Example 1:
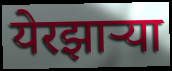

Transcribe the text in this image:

येरझार्‍या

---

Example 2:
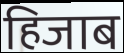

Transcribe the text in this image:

हिजाब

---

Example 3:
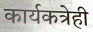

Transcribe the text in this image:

कार्यकत्रेही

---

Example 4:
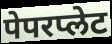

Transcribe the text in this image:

पेपरप्लेट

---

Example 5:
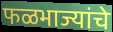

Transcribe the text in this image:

फळभाज्यांचे